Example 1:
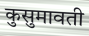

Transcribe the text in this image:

कुसुमावती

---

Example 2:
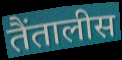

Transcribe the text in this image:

तैंतालीस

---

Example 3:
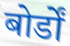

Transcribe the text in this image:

बोर्डों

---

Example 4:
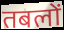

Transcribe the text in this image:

तबलों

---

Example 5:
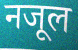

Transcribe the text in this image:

नजूल